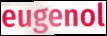
eugenol